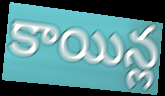
కాయిన్ల